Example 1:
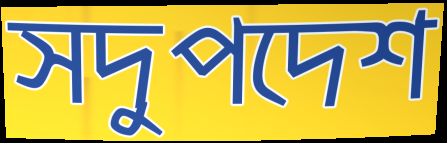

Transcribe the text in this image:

সদুপদেশ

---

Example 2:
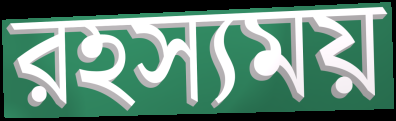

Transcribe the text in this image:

রহস্যময়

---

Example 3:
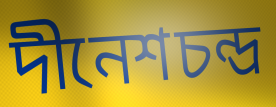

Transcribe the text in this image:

দীনেশচন্দ্র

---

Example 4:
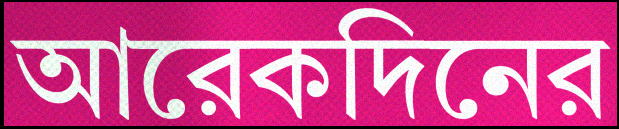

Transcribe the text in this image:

আরেকদিনের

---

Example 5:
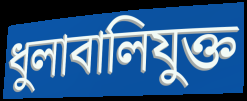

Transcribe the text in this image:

ধুলাবালিযুক্ত